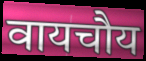
वायचौय